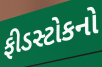
ફીડસ્ટોકનો